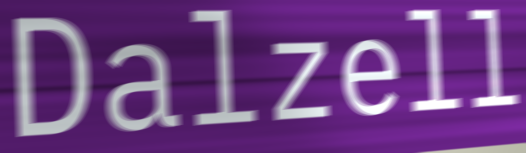
Dalzell